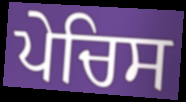
ਪੇਚਿਸ